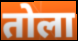
तोला